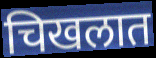
चिखलात